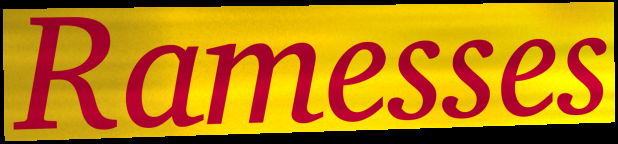
Ramesses